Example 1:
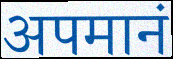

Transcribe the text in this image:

अपमानं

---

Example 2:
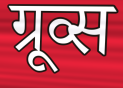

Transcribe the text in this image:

ग्रूव्स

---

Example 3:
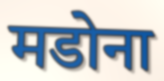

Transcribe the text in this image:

मडोना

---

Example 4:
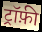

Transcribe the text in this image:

ट्रॉफ़ी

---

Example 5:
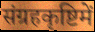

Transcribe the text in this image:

संग्रहकृष्टिमें